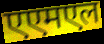
एएमएल